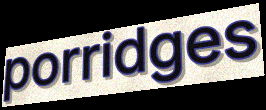
porridges